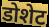
डोशेट